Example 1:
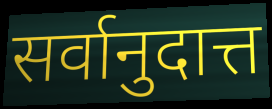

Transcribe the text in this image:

सर्वानुदात्त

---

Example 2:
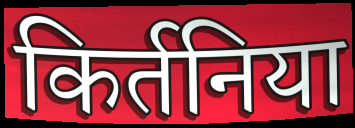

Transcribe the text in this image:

किर्तनिया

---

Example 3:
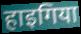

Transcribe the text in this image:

हाइगिया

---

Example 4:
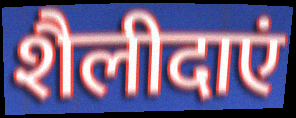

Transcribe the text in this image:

शैलीदाएं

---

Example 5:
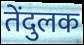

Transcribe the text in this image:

तेंदुलक